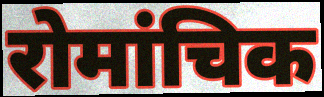
रोमांचिक